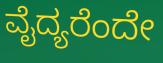
ವೈದ್ಯರೆಂದೇ